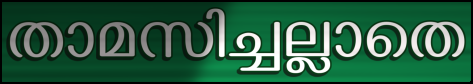
താമസിച്ചല്ലാതെ